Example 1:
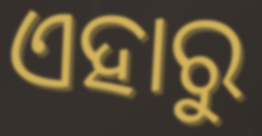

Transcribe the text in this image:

ଏହାରୁ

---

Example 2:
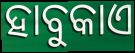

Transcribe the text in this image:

ହାବୁକାଏ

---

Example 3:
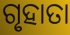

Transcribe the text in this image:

ଗୃହାତା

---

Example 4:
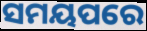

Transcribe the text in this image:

ସମୟପରେ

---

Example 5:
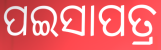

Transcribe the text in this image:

ପଇସାପତ୍ର